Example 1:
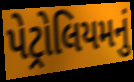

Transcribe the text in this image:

પેટ્રોલિયમનું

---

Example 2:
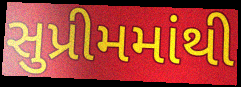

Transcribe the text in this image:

સુપ્રીમમાંથી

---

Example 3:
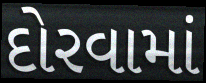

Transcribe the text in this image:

દોરવામાં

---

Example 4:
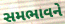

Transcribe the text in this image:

સમભાવને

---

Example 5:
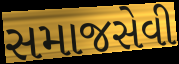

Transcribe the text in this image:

સમાજસેવી